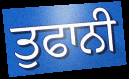
ਤੁਫਾਨੀ